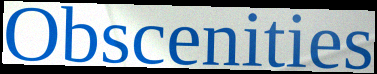
Obscenities